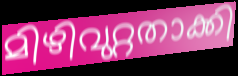
മിഴിവുറ്റതാക്കി